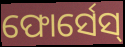
ଫୋର୍ସେସ୍